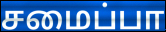
சமைப்பா